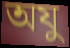
অযু